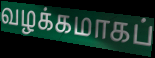
வழக்கமாகப்